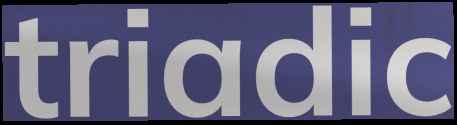
triadic